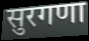
सुरगणा